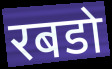
रबडो